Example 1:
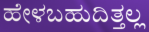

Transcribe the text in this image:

ಹೇಳಬಹುದಿತ್ತಲ್ಲ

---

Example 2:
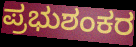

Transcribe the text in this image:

ಪ್ರಭುಶಂಕರ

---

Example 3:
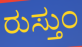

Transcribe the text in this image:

ರುಸ್ತುಂ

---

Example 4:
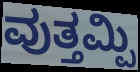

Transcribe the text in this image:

ವುತ್ತಮ್ಪಿ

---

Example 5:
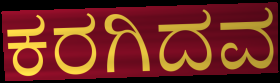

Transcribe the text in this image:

ಕರಗಿದವ